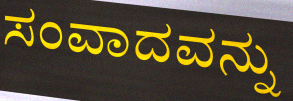
ಸಂವಾದವನ್ನು